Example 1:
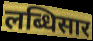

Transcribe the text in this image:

लब्धिसार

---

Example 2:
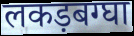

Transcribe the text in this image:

लकड़बग्घा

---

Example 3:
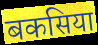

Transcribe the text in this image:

बकसिया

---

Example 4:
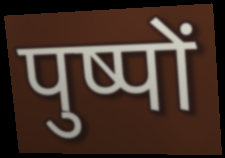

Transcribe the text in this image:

पुष्पों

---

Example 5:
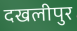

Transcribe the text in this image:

दखलीपुर